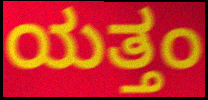
ಯತ್ತಂ